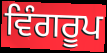
ਵਿੰਗਰੂਪ